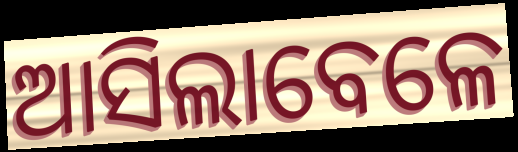
ଆସିଲାବେଳେ